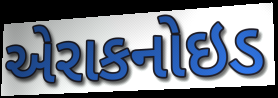
એરાકનોઇડ